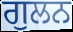
ਗੁਲਨ